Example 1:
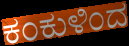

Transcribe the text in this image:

ಕಂಕುಳಿಂದ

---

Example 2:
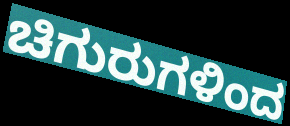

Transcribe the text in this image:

ಚಿಗುರುಗಳಿಂದ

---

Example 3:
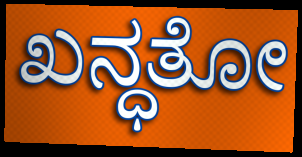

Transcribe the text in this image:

ಖನ್ಧತೋ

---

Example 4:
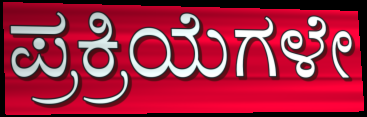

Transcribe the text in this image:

ಪ್ರಕ್ರಿಯೆಗಳೇ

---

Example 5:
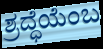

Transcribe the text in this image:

ಶ್ರದ್ಧೆಯೆಂಬ